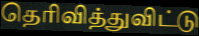
தெரிவித்துவிட்டு